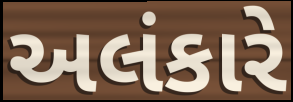
અલંકારે